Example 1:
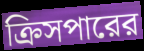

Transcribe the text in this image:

ক্রিসপারের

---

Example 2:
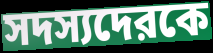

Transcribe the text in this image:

সদস্যদেরকে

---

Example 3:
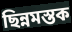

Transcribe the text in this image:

ছিন্নমস্তক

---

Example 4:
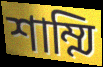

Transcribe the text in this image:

শাম্মি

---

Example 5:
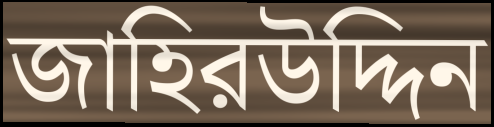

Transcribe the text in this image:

জাহিরউদ্দিন